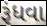
રૂંધવા